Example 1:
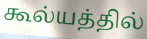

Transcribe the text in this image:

கூல்யத்தில்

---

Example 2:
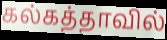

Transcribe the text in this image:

கல்கத்தாவில்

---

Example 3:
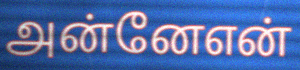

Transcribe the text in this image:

அன்னேஎன்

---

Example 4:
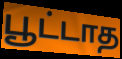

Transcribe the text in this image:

பூட்டாத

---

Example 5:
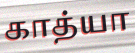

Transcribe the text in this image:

காத்யா